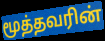
மூத்தவரின்